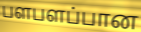
பளபளப்பான